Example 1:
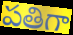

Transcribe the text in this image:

పతిగా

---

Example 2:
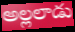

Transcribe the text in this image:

అల్లలాడు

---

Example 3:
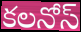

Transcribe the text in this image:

కలనోస్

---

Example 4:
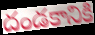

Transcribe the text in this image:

దండకానికి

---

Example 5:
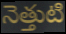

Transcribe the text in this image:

నెత్తుటి